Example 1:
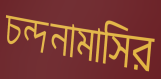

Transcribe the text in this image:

চন্দনামাসির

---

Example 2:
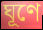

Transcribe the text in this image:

ঘূণে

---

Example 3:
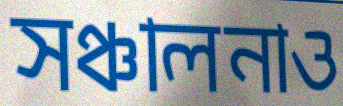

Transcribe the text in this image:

সঞ্চালনাও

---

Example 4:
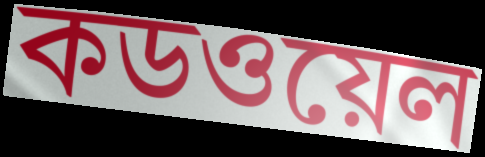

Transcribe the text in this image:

কডওয়েল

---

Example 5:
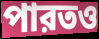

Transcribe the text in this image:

পারতও